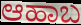
ಆಹಾಬ